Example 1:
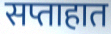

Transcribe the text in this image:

सप्ताहात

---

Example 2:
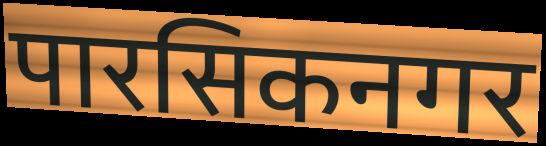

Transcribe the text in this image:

पारसिकनगर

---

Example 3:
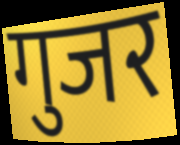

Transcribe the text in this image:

गुजर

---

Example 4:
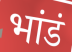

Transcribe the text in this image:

भांडं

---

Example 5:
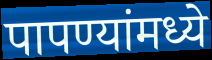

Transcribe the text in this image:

पापण्यांमध्ये